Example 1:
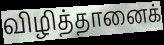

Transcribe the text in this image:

விழித்தானைக்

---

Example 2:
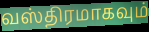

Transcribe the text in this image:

வஸ்திரமாகவும்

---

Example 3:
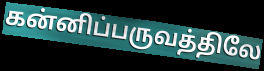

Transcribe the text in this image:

கன்னிப்பருவத்திலே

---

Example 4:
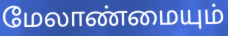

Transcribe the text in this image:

மேலாண்மையும்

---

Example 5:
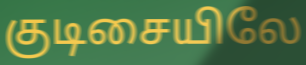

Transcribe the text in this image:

குடிசையிலே